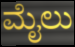
ಮೈಲು